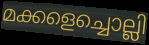
മക്കളെച്ചൊല്ലി